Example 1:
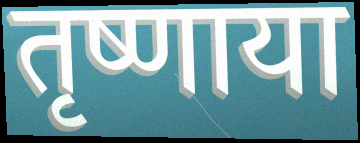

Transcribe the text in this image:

तृष्णाया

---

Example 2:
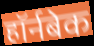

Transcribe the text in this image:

हॉर्नबेक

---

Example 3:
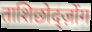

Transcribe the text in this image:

ताशिछोद्ज़ोंग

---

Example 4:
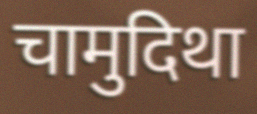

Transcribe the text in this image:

चामुदिथा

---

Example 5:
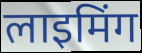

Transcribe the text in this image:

लाइमिंग